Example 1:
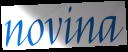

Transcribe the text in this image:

novina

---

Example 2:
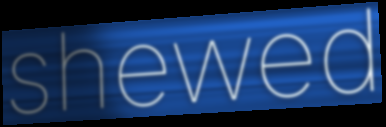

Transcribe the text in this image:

shewed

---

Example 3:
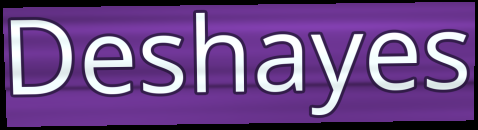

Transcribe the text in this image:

Deshayes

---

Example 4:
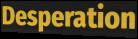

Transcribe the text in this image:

Desperation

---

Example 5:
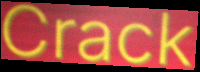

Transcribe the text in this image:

Crack